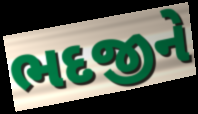
ભદજીને